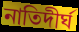
নাতিদীর্ঘ